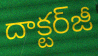
దాక్టర్‌జీ